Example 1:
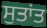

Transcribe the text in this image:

ਸੁਤਾਂਤ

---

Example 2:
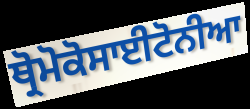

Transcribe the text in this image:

ਥ੍ਰੋਮੋਕੋਸਾਈਟੋਨੀਆ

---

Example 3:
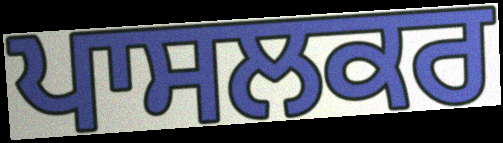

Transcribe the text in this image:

ਪਾਸਲਕਰ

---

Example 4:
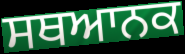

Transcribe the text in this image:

ਸਥਆਨਕ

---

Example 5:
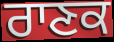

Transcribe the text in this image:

ਰਾਣਕ